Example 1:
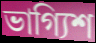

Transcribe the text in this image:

ভাগ্যিশ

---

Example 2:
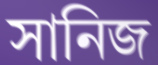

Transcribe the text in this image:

সানিজ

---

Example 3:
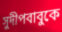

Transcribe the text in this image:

সুদীপবাবুকে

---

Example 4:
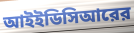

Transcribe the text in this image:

আইইডিসিআরের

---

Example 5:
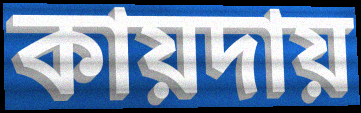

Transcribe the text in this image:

কায়দায়